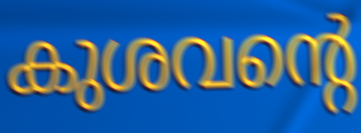
കുശവന്റെ